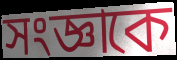
সংজ্ঞাকে